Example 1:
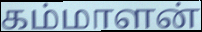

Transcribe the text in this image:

கம்மாளன்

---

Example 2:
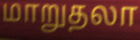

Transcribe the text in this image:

மாறுதலா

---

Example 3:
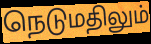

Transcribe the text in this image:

நெடுமதிலும்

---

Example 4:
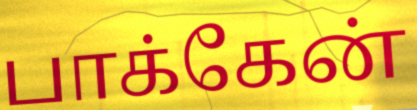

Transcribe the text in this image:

பாக்கேன்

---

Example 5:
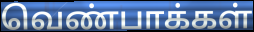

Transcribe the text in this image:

வெண்பாக்கள்